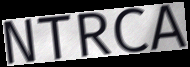
NTRCA